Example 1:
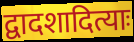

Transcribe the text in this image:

द्वादशादित्याः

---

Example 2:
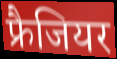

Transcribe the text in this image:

फ्रैजियर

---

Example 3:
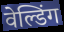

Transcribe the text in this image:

वेल्डिंग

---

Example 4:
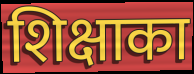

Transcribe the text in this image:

शिक्षाका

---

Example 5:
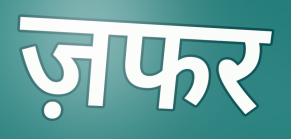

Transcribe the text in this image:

ज़फर